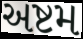
અષ્ટમ